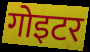
गोइटर